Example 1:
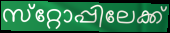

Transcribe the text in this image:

സ്‌റ്റോപ്പിലേക്ക്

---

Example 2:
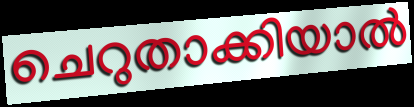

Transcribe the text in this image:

ചെറുതാക്കിയാൽ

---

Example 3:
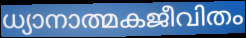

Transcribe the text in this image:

ധ്യാനാത്മകജീവിതം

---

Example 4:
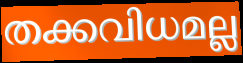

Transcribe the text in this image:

തക്കവിധമല്ല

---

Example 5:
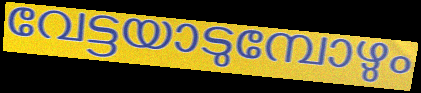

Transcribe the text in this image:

വേട്ടയാടുമ്പോഴും